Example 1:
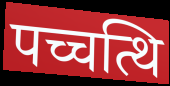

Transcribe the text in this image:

पच्चत्थि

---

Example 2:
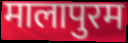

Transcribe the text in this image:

मालापुरम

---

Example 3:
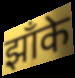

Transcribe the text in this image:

झाँके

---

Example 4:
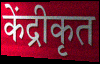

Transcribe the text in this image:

केंद्रीकृत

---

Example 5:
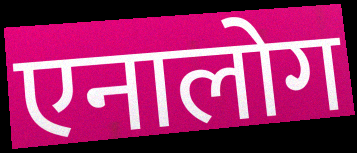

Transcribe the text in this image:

एनालोग